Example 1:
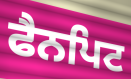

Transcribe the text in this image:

ਫੈਨਪਿਟ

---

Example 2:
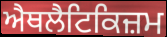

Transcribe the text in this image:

ਐਥਲੈਟਿਕਿਜ਼ਮ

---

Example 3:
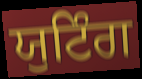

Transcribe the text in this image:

ਯੁਟਿੰਗ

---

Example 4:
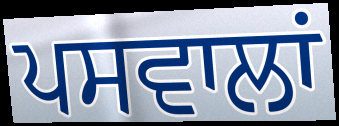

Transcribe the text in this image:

ਪਸਵਾਲਾਂ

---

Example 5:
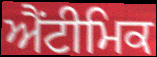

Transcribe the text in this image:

ਐਂਟੀਮਿਕ